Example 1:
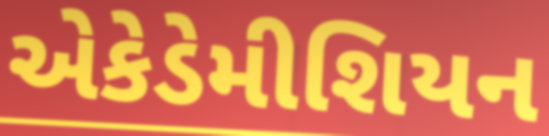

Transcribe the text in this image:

એકેડેમીશિયન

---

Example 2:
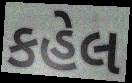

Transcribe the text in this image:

કહેલ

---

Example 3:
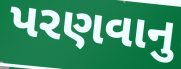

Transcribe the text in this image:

પરણવાનુ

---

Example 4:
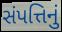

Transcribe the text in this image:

સંપત્તિનું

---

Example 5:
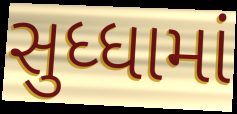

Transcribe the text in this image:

સુધ્ધામાં